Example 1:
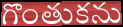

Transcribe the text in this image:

గొంతుకను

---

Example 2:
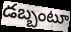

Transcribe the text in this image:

డబ్బంటూ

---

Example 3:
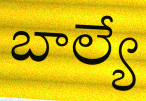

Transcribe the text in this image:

బాల్యే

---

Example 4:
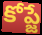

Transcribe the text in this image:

కోప్జే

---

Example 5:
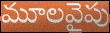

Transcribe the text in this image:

మూలవైపు